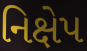
નિક્ષેપ